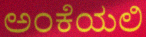
ಅಂಕೆಯಲಿ